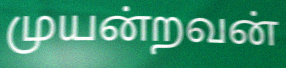
முயன்றவன்